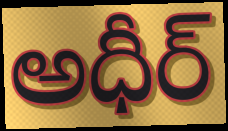
అధీర్